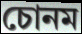
চোনম